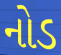
નોડ